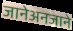
जानेअनजाने